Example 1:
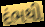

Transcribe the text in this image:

દંભથી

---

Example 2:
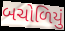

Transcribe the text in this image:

બચોળિયું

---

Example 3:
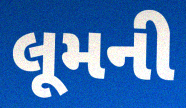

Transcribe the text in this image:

લૂમની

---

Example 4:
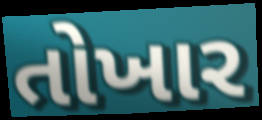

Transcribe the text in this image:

તોખાર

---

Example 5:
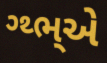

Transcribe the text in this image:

ગ્થ્ભ્એ